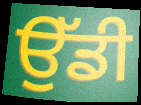
ਉੱਡੀ